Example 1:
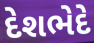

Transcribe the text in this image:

દેશભેદે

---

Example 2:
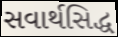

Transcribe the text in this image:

સવાર્થસિદ્ધ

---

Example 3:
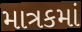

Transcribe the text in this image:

માત્રકમાં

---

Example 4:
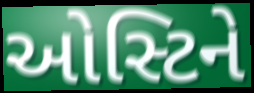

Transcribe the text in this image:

ઓસ્ટિને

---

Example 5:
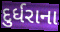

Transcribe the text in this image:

દુર્ધરાના